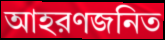
আহরণজনিত